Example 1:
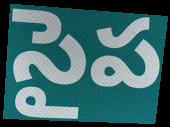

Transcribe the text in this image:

సైప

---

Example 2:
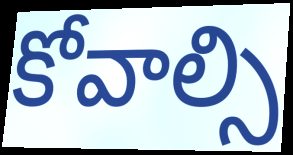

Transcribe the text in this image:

కోవాల్సి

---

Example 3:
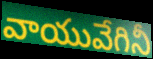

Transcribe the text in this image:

వాయువేగినీ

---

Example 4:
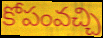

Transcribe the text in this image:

కోపంవచ్చి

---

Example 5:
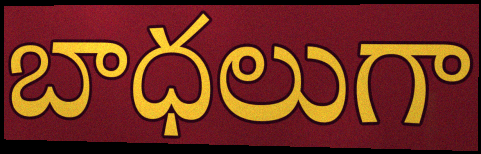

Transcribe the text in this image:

బాధలుగా